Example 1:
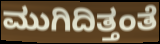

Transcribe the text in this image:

ಮುಗಿದಿತ್ತಂತೆ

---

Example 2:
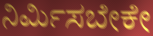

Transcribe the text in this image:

ನಿರ್ಮಿಸಬೇಕೇ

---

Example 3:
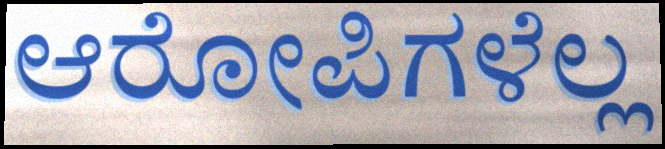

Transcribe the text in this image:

ಆರೋಪಿಗಳೆಲ್ಲ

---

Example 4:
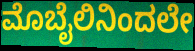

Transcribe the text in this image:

ಮೊಬೈಲಿನಿಂದಲೇ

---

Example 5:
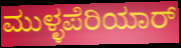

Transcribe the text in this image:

ಮುಳ್ಳಪೆರಿಯಾರ್